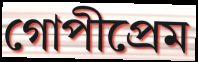
গোপীপ্রেম